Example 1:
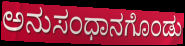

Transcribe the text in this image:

ಅನುಸಂಧಾನಗೊಂಡು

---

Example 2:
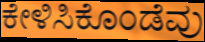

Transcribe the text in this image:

ಕೇಳಿಸಿಕೊಂಡೆವು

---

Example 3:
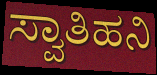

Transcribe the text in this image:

ಸ್ವಾತಿಹನಿ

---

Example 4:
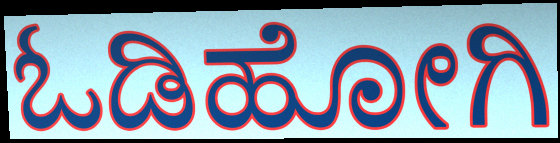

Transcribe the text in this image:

ಓಡಿಹೋಗಿ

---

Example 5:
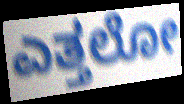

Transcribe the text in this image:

ಎತ್ತಲೋ